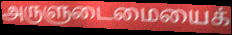
அருளுடைமையைக்